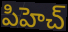
పిహెచ్